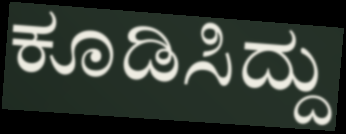
ಕೂಡಿಸಿದ್ದು